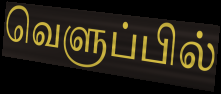
வெளுப்பில்